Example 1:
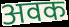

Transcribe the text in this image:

अवक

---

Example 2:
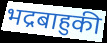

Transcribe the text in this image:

भद्रबाहुकी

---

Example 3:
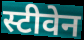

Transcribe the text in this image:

स्टीवेन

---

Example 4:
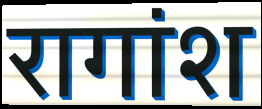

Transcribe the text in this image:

रागांश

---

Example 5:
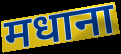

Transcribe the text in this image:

मधाना